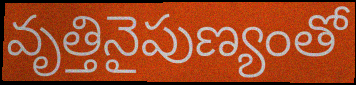
వృత్తినైపుణ్యంతో